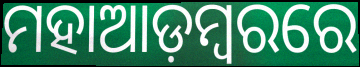
ମହାଆଡ଼ମ୍ୱରରେ